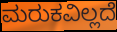
ಮರುಕವಿಲ್ಲದೆ